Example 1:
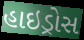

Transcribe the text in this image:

હાઇડ્રોસ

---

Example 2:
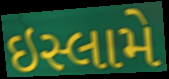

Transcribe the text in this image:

ઇસ્લામે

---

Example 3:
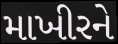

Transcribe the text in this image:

માખીરને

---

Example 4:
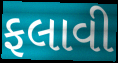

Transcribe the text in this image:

ફલાવી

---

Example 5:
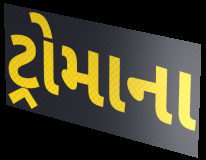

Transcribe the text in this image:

ટ્રોમાના